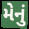
મેનું